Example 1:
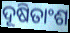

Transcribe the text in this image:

ଦୂଷିତାଂଶ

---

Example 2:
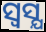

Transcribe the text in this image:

ସ୍ଵସ୍ଯ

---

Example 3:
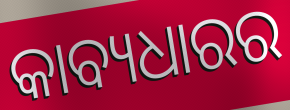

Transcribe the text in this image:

କାବ୍ୟଧାରର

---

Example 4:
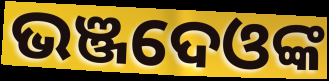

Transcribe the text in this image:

ଭଞ୍ଜଦେଓଙ୍କ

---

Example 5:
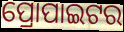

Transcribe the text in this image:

ପ୍ରୋପାଇଟର